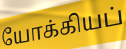
யோக்கியப்